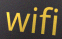
wifi